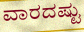
ವಾರದಷ್ಟು